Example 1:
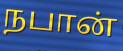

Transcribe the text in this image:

நபான்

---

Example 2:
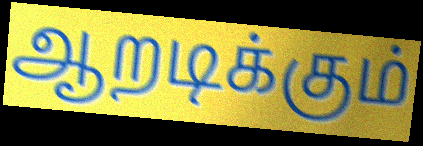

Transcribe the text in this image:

ஆறடிக்கும்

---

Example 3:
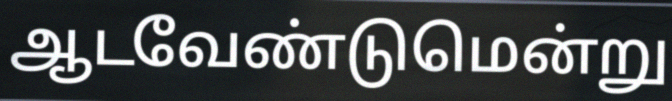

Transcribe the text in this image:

ஆடவேண்டுமென்று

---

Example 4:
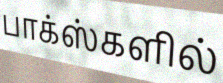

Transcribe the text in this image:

பாக்ஸ்களில்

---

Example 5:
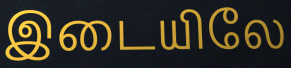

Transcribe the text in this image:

இடையிலே